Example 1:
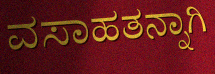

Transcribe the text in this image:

ವಸಾಹತನ್ನಾಗಿ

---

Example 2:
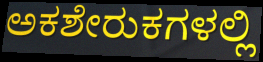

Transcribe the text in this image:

ಅಕಶೇರುಕಗಳಲ್ಲಿ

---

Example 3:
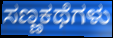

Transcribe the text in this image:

ಸಣ್ಣಕಥೆಗಳು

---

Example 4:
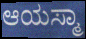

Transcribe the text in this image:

ಆಯಸ್ಮಾ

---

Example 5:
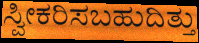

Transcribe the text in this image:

ಸ್ವೀಕರಿಸಬಹುದಿತ್ತು